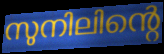
സുനിലിന്റെ